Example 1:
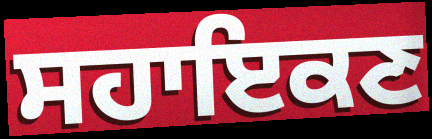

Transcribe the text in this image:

ਸਹਾਇਕਣ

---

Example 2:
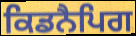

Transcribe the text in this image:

ਕਿਡਨੈਪਿਗ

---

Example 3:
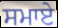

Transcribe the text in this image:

ਸਮਾਏ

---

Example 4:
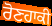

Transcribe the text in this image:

ਰੋਣਹਾਕੀ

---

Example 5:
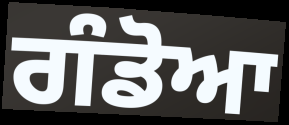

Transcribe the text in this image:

ਗੰਡੋਆ